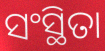
ସଂସ୍ଥିତା